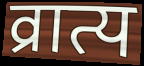
व्रात्य